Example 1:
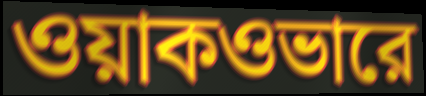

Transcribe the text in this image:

ওয়াকওভারে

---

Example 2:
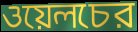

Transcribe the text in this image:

ওয়েলচের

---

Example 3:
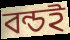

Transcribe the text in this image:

বন্ডই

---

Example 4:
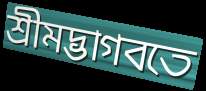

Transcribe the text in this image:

শ্রীমদ্ভাগবতে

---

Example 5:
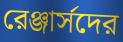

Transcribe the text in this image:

রেঞ্জার্সদের